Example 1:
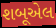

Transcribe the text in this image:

શબૂએલ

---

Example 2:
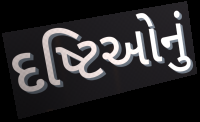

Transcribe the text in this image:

દષ્ટિઓનું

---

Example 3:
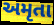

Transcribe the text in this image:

અમૃતા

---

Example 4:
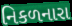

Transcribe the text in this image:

નિકળનારા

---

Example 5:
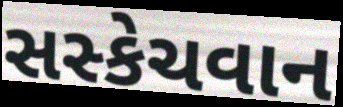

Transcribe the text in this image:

સસ્કેચવાન